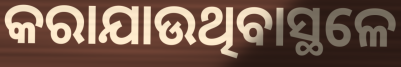
କରାଯାଉଥିବାସ୍ଥଳେ